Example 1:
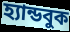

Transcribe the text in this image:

হ্যান্ডবুক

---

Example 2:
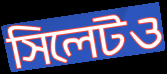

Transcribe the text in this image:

সিলেটও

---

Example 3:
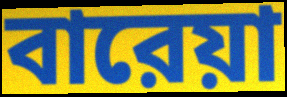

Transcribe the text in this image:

বারেয়া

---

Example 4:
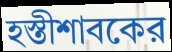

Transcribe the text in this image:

হস্তীশাবকের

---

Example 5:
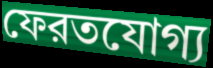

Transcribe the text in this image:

ফেরতযোগ্য